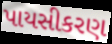
પાયસીકરણ